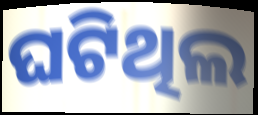
ଘଟିଥିଲ